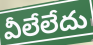
వీలేలేదు